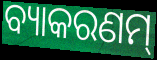
ବ୍ୟାକରଣମ୍